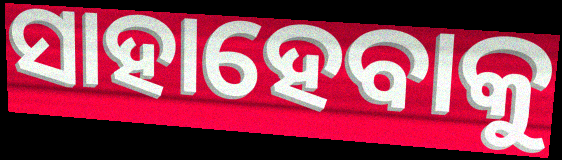
ସାହାହେବାକୁ